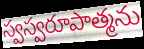
స్వస్వరూపాత్మను